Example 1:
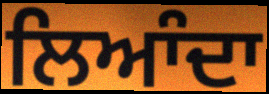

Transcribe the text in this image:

ਲਿਆੰਦਾ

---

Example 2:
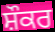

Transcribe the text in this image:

ਸ਼ੌਕਰ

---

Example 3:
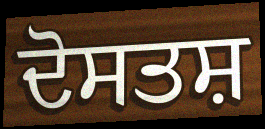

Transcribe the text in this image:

ਦੋਸਤਸ਼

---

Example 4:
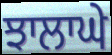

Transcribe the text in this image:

ਝਾਲਾਘੇ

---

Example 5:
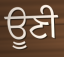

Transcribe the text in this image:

ਊਣੀ